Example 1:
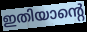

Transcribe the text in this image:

ഇതിയാന്റെ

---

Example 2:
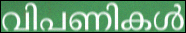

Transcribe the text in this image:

വിപണികൾ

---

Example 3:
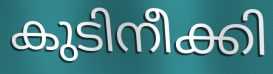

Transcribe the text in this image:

കുടിനീക്കി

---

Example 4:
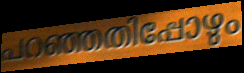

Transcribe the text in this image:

പറഞ്ഞതിപ്പോഴും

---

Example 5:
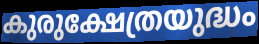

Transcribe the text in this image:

കുരുക്ഷേത്രയുദ്ധം